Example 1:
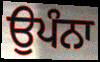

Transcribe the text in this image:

ਉਪੰਨਾ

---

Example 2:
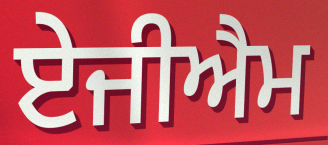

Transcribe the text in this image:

ਏਜੀਐਮ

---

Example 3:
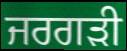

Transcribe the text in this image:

ਜਰਗੜੀ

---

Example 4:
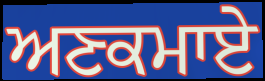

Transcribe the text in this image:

ਅਣਕਮਾਏ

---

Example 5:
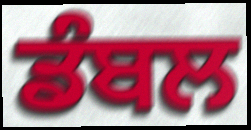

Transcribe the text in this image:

ਡੰਬਲ